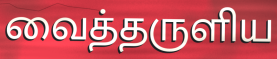
வைத்தருளிய